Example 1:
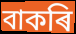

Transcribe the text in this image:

বাকৰি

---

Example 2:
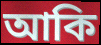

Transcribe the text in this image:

আকি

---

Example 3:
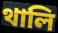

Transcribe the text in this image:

থালি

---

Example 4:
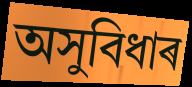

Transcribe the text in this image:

অসুবিধাৰ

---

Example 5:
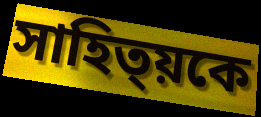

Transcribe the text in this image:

সাহিত্য়কে